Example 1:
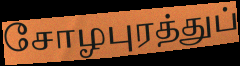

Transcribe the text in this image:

சோழபுரத்துப்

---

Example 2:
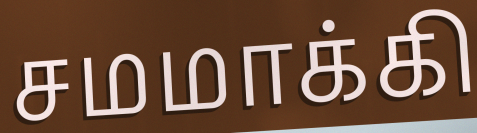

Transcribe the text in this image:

சமமாக்கி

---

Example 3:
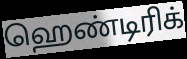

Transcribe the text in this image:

ஹெண்டிரிக்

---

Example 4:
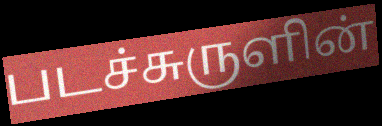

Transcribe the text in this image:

படச்சுருளின்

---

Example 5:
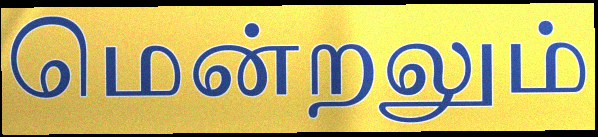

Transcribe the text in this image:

மென்றலும்